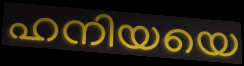
ഹനിയയെ